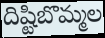
దిష్టిబొమ్మల